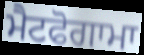
ਮੈਟਫੋਗਾਮਾ